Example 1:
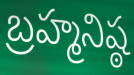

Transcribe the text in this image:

బ్రహ్మనిష్ఠ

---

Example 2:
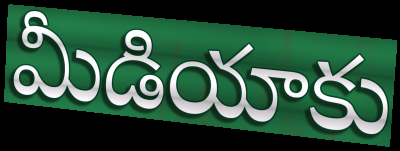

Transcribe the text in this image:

మీడియాకు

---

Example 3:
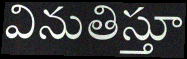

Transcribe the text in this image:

వినుతిస్తూ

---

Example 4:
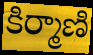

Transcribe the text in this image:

కిర్మాణి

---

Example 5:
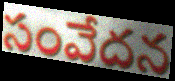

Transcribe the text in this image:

సంవేదన